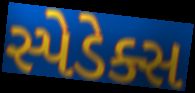
સ્પેડેક્સ